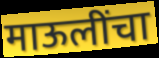
माऊलींचा